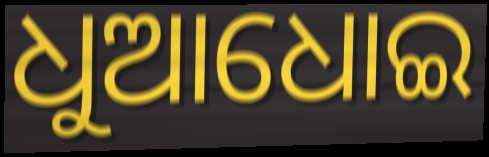
ଧୁଆଧୋଇ